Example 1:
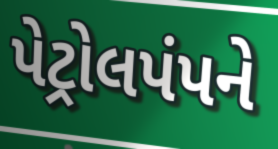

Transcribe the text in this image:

પેટ્રોલપંપને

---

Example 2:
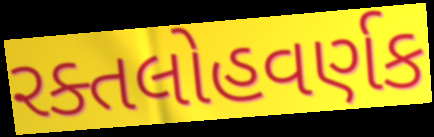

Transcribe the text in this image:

રક્તલોહવર્ણક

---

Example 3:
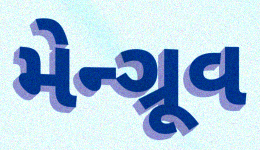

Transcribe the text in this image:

મેન્ગ્રૂવ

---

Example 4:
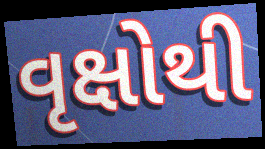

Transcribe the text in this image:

વૃક્ષોથી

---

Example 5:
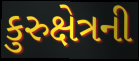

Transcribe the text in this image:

કુરુક્ષેત્રની